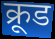
क्रूड